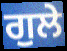
ਗੁਲੇ